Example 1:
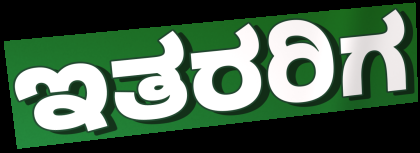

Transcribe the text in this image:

ಇತರರಿಗ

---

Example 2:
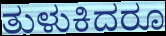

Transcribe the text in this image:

ತುಳುಕಿದರೂ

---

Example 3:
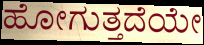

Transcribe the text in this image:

ಹೋಗುತ್ತದೆಯೇ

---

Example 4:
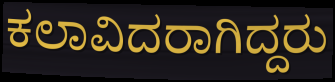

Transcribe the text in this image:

ಕಲಾವಿದರಾಗಿದ್ದರು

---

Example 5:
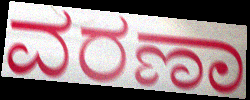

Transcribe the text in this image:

ವರಣಾ